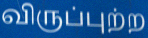
விருப்புற்ற